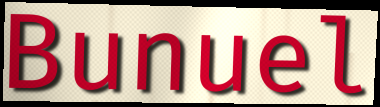
Bunuel